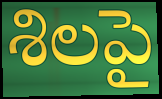
శిలపై